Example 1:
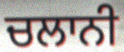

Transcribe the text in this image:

ਚਲਾਨੀ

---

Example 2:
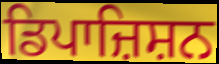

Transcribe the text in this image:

ਡਿਪਾਜ਼ਿਸ਼ਨ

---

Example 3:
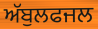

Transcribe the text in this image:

ਅੱਬੁਲਫਜਲ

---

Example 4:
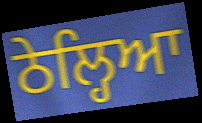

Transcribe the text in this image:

ਠੇਲ੍ਹਿਆ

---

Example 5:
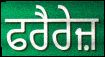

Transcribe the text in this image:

ਫਰੈਰੇਜ਼